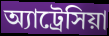
অ্যাট্রেসিয়া